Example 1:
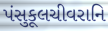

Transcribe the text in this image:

પંસુકૂલચીવરાનિ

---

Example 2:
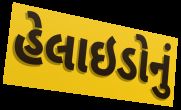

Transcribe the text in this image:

હેલાઇડોનું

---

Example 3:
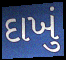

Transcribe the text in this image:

દાખું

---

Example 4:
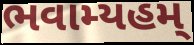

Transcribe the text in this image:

ભવામ્યહમ્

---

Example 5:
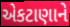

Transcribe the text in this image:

એકટાણાને